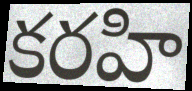
కరహి